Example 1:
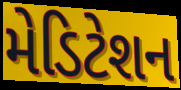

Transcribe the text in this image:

મેડિટેશન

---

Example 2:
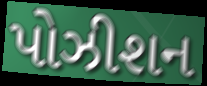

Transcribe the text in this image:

પોઝીશન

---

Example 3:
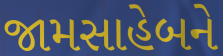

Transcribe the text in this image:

જામસાહેબને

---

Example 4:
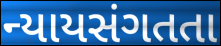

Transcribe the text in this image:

ન્યાયસંગતતા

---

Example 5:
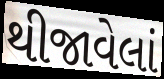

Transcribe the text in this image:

થીજાવેલાં